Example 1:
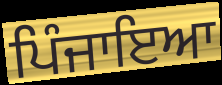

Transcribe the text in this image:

ਪਿੰਜਾਇਆ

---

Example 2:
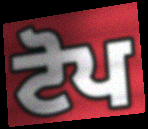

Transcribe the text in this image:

ਟੋਪ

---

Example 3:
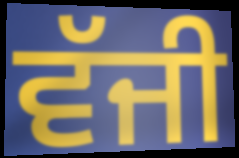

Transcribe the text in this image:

ਵੱਜੀ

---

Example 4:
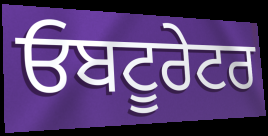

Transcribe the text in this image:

ਓਬਟੂਰੇਟਰ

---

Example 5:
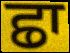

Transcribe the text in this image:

ਛਾ